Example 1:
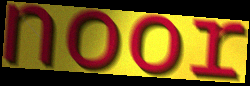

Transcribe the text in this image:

noor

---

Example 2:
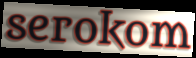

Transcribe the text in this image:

serokom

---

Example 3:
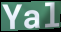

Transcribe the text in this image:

Yal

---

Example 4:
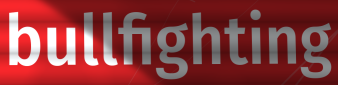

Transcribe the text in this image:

bullfighting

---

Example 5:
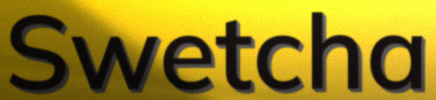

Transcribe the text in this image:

Swetcha